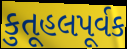
કુતૂહલપૂર્વક